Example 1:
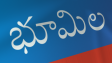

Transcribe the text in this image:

భూమిల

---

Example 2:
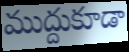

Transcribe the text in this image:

ముద్దుకూడా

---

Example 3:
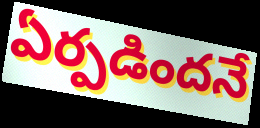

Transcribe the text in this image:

ఏర్పడిందనే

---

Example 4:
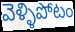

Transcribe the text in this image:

వెళ్ళిపోటం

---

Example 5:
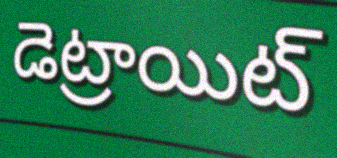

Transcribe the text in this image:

డెట్రాయిట్